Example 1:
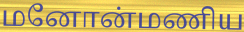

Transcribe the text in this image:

மனோன்மணிய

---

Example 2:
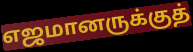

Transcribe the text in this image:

எஜமானருக்குத்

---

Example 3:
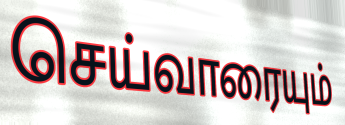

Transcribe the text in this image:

செய்வாரையும்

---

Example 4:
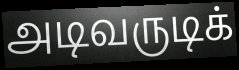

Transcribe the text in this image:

அடிவருடிக்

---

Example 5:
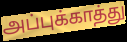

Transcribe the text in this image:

அப்புக்காத்து